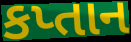
કપ્તાન